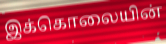
இக்கொலையின்